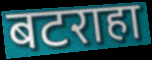
बटराहा